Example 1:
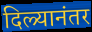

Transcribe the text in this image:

दिल्यानंतर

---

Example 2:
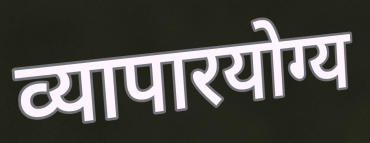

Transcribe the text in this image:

व्यापारयोग्य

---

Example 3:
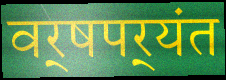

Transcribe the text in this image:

वर्षपर्यंत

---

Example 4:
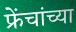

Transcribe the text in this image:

फ्रेंचांच्या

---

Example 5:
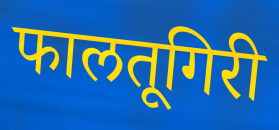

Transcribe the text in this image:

फालतूगिरी